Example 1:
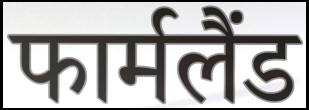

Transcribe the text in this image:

फार्मलैंड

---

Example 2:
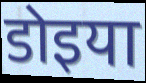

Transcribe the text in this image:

डोइया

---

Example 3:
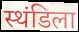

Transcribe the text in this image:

स्थंडिला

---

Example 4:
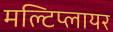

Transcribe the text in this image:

मल्टिप्लायर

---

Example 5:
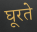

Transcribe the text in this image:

घूरते